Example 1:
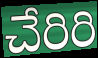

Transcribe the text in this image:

చేరిరి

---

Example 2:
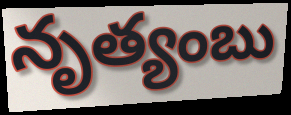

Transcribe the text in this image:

నృత్యంబు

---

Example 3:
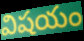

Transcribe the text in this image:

విషయం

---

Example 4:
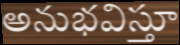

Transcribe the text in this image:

అనుభవిస్తూ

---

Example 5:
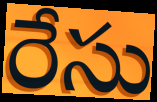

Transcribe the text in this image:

రేసు